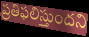
ప్రతిఫలిస్తుందని